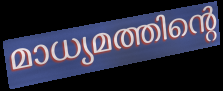
മാധ്യമത്തിന്റെ